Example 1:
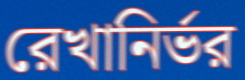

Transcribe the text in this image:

রেখানির্ভর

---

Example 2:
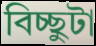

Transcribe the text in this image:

বিচ্ছুটা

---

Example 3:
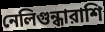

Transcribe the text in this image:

নেলিগুন্ধারাশি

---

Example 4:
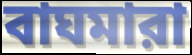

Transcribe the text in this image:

বাঘমারা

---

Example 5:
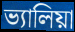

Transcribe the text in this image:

ভ্যালিয়া